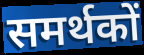
समर्थकों